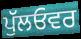
ਪੁੱਲਓਵਰ